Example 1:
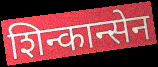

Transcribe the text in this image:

शिन्कान्सेन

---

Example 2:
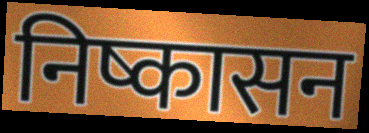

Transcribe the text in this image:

निष्कासन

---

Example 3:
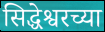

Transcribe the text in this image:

सिद्धेश्वरच्या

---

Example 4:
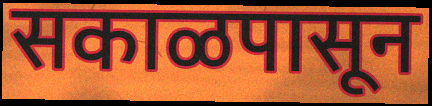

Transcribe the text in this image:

सकाळपासून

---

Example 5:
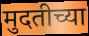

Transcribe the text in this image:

मुदतीच्या